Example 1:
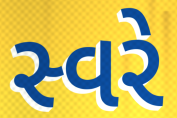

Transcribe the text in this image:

સ્વરે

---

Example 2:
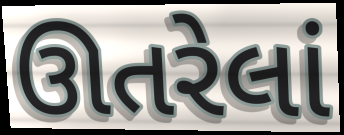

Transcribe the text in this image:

ઊતરેલાં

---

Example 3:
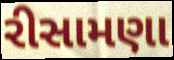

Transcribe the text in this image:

રીસામણા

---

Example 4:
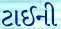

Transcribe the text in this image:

ટાઈની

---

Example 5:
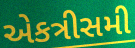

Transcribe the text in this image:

એકત્રીસમી